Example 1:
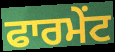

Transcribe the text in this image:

ਫਾਰਮੇਂਟ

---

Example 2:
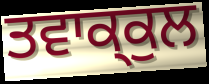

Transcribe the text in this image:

ਤਵਾਕ੍ਕੁਲ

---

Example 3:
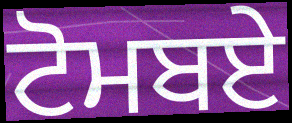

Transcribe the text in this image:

ਟੋਮਬਏ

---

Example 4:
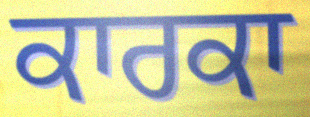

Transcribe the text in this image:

ਕਾਰਕਾ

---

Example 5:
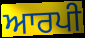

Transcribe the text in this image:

ਆਰਪੀ